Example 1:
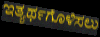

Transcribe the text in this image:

ಇತ್ಯರ್ಥಗೊಳಿಸಲು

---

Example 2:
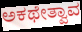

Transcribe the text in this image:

ಅಕಥೇತ್ವಾವ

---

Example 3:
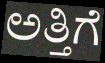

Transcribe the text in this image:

ಅತ್ತಿಗೆ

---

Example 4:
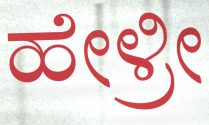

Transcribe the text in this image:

ಹೇಳ್ರೀ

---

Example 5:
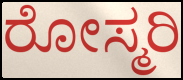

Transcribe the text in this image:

ರೋಸ್ಮರಿ